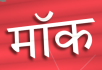
मॉक